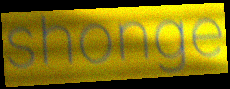
shonge